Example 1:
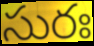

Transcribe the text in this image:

సురః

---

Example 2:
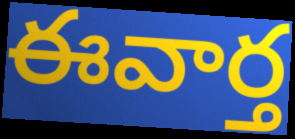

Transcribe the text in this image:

ఈవార్త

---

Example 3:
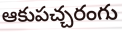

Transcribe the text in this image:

ఆకుపచ్చరంగు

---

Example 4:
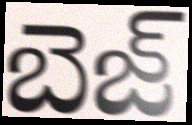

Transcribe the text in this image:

బెజ్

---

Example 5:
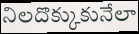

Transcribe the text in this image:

నిలదొక్కుకునేలా